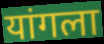
यांगला